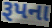
રૂપના